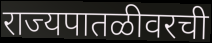
राज्यपातळीवरची